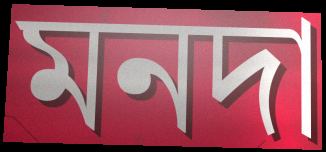
মনদা